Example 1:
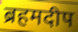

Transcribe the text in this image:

ब्रहमदीप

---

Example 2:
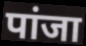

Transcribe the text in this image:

पांजा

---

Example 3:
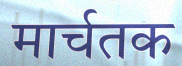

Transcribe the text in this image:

मार्चतक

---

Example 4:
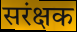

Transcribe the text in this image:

सरंक्षक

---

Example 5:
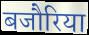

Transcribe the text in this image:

बजौरिया